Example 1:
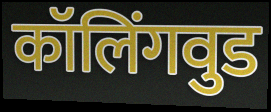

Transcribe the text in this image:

कॉलिंगवुड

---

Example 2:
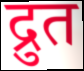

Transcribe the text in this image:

द्रुत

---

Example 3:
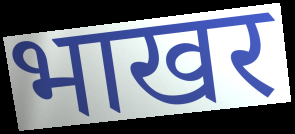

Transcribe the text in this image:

भाखर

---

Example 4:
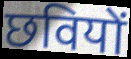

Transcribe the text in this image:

छवियों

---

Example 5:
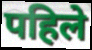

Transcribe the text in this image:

पहिले